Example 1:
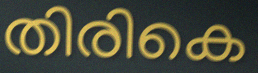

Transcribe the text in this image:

തിരികെ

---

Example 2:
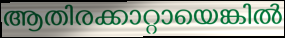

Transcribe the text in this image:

ആതിരക്കാറ്റായെങ്കിൽ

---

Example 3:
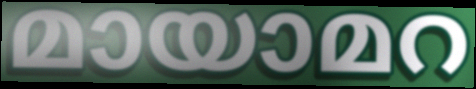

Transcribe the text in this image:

മായാമറ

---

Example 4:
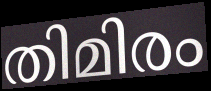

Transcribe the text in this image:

തിമിരം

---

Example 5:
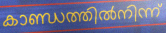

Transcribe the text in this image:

കാണ്ഡത്തിൽനിന്ന്